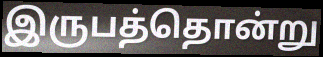
இருபத்தொன்று